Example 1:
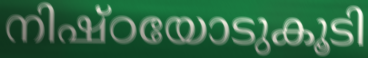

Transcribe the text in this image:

നിഷ്ഠയോടുകൂടി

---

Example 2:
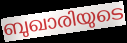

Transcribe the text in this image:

ബുഖാരിയുടെ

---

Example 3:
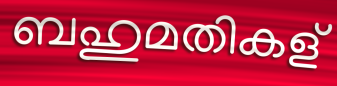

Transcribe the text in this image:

ബഹുമതികള്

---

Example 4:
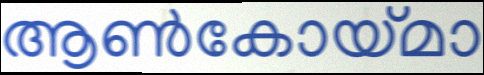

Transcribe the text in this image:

ആൺകോയ്മാ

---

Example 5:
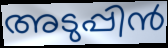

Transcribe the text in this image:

അടുപ്പിൻ